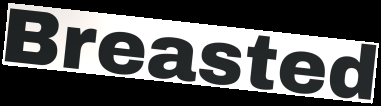
Breasted